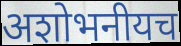
अशोभनीयच